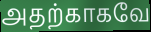
அதற்காகவே